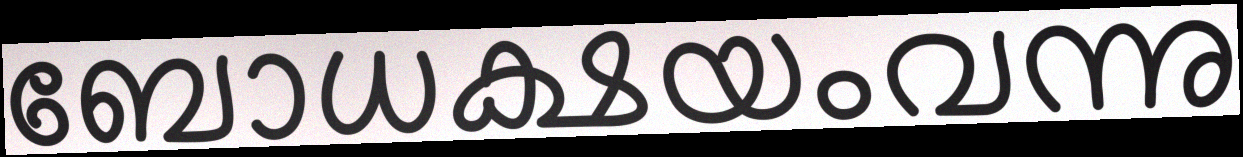
ബോധക്ഷയംവന്നു